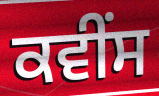
ਕਵੀਂਸ